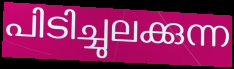
പിടിച്ചുലക്കുന്ന